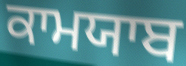
ਕਾਮਯਾਬ